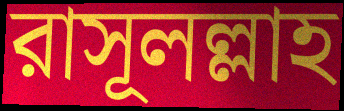
রাসূলল্লাহ